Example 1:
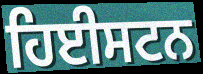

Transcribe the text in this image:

ਹਿਈਸਟਨ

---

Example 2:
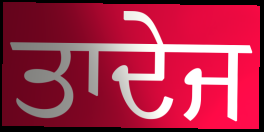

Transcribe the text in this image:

ਤਾਦੇਜ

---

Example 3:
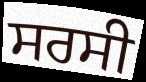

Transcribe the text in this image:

ਸਰਸੀ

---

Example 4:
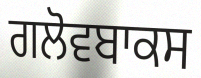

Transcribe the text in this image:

ਗਲੋਵਬਾਕਸ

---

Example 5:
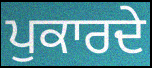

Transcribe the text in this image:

ਪੁਕਾਰਦੇ